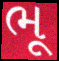
ભૂ